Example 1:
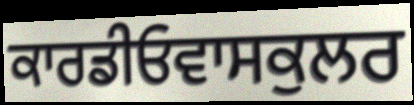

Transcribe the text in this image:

ਕਾਰਡੀਓਵਾਸਕੁਲਰ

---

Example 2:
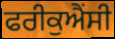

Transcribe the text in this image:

ਫਰੀਕੁਐਂਸੀ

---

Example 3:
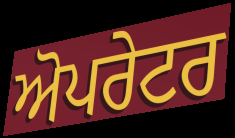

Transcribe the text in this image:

ਅੋਪਰੇਟਰ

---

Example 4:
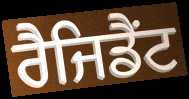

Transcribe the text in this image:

ਰੈਜਿਡੈਂਟ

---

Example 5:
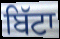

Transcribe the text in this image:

ਬਿੱਟਾ